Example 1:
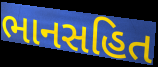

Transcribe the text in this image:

ભાનસહિત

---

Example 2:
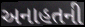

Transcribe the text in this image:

અનાહતની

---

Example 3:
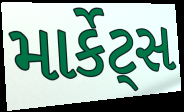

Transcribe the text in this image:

માર્કેટ્સ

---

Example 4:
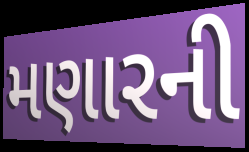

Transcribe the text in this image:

મણારની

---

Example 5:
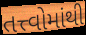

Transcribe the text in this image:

તત્ત્વોમાંથી